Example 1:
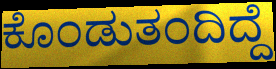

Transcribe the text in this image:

ಕೊಂಡುತಂದಿದ್ದೆ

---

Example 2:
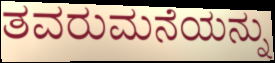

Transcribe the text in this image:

ತವರುಮನೆಯನ್ನು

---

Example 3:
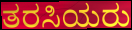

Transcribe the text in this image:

ತರಸಿಯರು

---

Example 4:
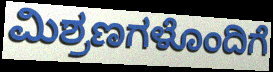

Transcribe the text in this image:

ಮಿಶ್ರಣಗಳೊಂದಿಗೆ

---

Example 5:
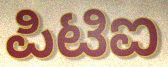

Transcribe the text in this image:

ಪಿಟಿಐ